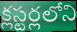
క్లస్టర్లలోని